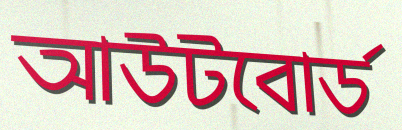
আউটবোর্ড